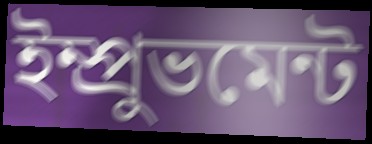
ইম্প্রুভমেন্ট